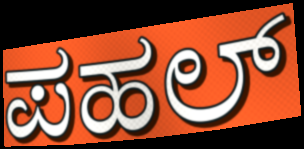
ಪಹಲ್